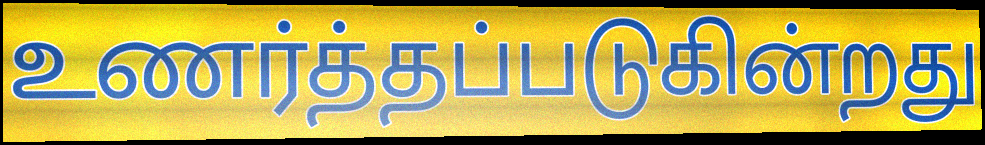
உணர்த்தப்படுகின்றது